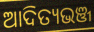
ଆଦିତ୍ୟଭଞ୍ଜ